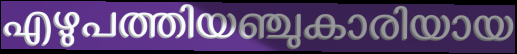
എഴുപത്തിയഞ്ചുകാരിയായ